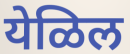
येळिल